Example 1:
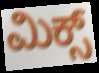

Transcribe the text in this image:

ಮಿಕ್ಸ್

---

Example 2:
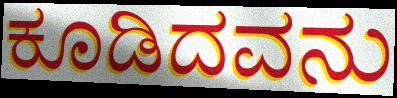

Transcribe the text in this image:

ಕೂಡಿದವನು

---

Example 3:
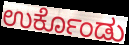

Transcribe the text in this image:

ಉರ್ಕೊಂಡು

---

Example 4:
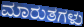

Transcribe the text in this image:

ಮಾರುತಗಳು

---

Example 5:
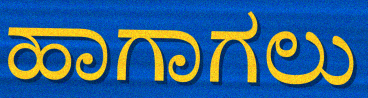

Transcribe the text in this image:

ಹಾಗಾಗಲು